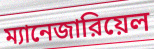
ম্যানেজারিয়েল